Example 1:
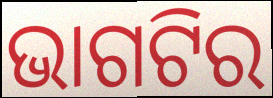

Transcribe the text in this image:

ଭାଗଟିର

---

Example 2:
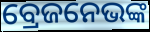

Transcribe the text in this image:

ବ୍ରେଜନେଭଙ୍କ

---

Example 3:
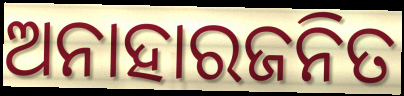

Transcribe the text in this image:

ଅନାହାରଜନିତ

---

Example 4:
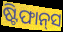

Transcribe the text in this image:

ଷ୍ଟିଫାନ୍‍ସ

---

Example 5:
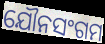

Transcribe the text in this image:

ଯୌନସଂଗମ